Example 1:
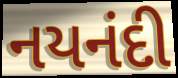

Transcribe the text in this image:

નયનંદી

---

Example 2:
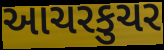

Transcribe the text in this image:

આચરકુચર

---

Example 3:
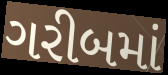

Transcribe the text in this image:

ગરીબમાં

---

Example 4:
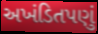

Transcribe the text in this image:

અખંડિતપણું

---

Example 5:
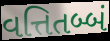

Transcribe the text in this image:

વત્તિતબ્બં